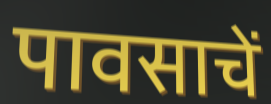
पावसाचें